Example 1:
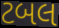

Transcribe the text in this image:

ટબલ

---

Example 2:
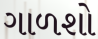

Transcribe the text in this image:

ગાળશો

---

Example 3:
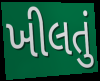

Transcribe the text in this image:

ખીલતું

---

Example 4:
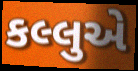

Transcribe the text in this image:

કલ્લુએ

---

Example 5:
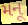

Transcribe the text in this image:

મનૂ